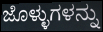
ಜೊಳ್ಳುಗಳನ್ನು